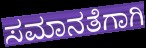
ಸಮಾನತೆಗಾಗಿ